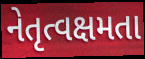
નેતૃત્વક્ષમતા